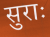
सुराः